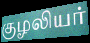
குழலியர்